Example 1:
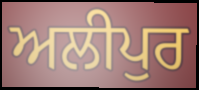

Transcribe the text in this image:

ਅਲੀਪੁਰ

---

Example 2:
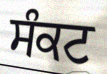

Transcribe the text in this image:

ਸੰਕਟ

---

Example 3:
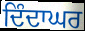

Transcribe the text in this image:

ਦਿੰਦਾਘਰ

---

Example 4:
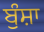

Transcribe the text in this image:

ਬੁੰਸ਼ਾ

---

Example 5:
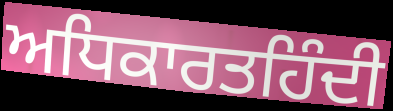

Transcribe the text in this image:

ਅਧਿਕਾਰਤਹਿੰਦੀ